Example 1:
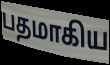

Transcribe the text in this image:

பதமாகிய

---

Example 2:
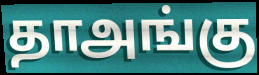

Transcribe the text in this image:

தாஅங்கு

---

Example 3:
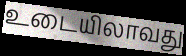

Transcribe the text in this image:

உடையிலாவது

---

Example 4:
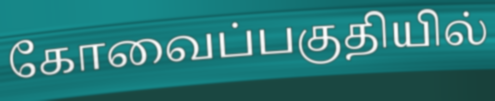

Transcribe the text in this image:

கோவைப்பகுதியில்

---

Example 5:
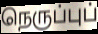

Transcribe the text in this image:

நெருப்புப்